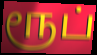
ரூப்